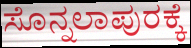
ಸೊನ್ನಲಾಪುರಕ್ಕೆ